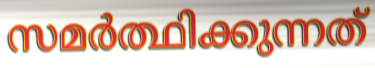
സമർത്ഥിക്കുന്നത്